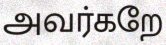
அவர்கறே